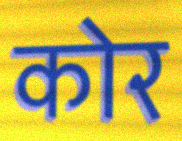
कोर